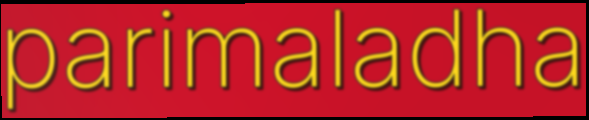
parimaladha